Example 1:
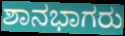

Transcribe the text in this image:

ಶಾನಭಾಗರು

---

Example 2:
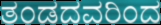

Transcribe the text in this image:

ತಂಡದವರಿಂದ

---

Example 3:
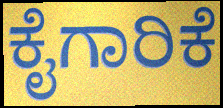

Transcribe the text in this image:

ಕೈಗಾರಿಕೆ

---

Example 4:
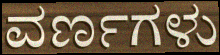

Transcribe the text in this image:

ವರ್ಣಗಳು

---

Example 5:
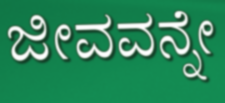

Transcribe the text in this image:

ಜೀವವನ್ನೇ